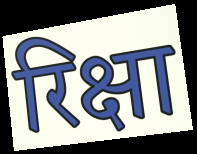
रिक्षा